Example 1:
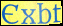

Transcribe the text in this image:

Exbt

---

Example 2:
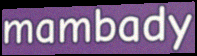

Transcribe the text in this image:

mambady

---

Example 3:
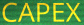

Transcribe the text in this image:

CAPEX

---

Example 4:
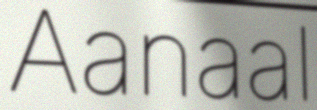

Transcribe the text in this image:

Aanaal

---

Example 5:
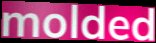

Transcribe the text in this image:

molded